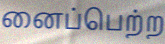
னைப்பெற்ற